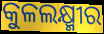
କୁଳଲକ୍ଷ୍ମୀର